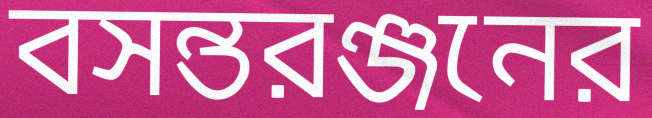
বসন্তরঞ্জনের